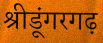
श्रीडूंगरगढ़